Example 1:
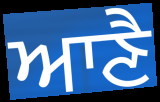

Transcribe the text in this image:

ਆਣੈ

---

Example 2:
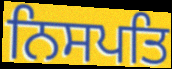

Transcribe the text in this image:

ਨਿਸਪਤਿ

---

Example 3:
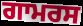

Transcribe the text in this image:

ਗਾਮਰਸ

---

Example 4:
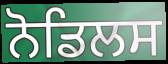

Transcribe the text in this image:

ਨੋਡਿਲਸ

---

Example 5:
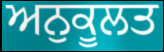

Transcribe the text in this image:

ਅਨੁਕੂਲਤ